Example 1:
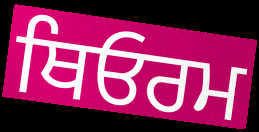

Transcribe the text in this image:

ਥਿਓਰਮ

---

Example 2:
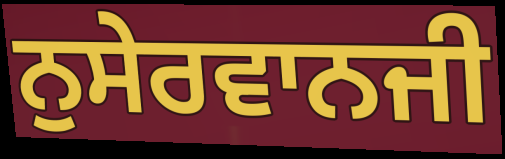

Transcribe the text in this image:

ਨੁਸੇਰਵਾਨਜੀ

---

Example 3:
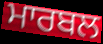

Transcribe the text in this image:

ਮਾਰਬਲ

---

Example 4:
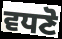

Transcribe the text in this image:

ਵਧਣੋ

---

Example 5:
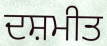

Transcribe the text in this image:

ਦਸ਼ਮੀਤ